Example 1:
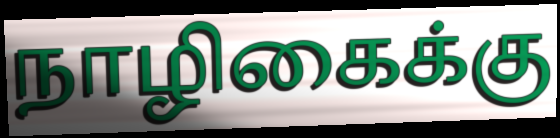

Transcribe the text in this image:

நாழிகைக்கு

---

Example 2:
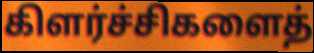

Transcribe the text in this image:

கிளர்ச்சிகளைத்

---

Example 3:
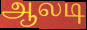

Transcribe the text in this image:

ஆலடி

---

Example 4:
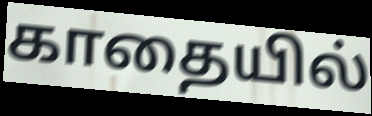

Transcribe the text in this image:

காதையில்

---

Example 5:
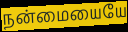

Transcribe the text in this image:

நன்மையையே